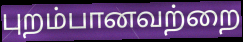
புறம்பானவற்றை